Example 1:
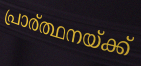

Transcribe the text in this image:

പ്രാര്ത്ഥനയ്ക്ക്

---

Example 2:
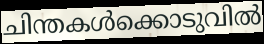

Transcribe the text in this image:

ചിന്തകൾക്കൊടുവിൽ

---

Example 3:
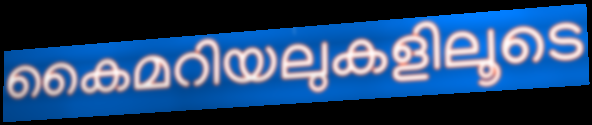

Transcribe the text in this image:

കൈമറിയലുകളിലൂടെ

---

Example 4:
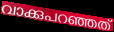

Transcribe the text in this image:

വാക്കുപറഞ്ഞത്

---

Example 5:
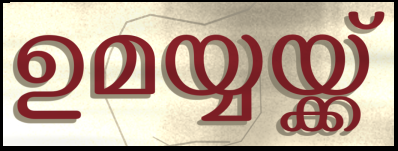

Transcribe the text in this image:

ഉമയ്യയ്ക്ക്